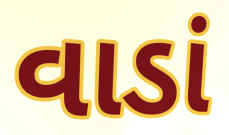
વાડાં